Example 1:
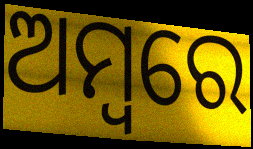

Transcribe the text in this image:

ଅମ୍ବରେ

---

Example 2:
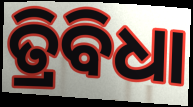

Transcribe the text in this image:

ତ୍ରିବିଧା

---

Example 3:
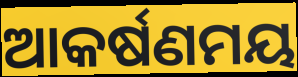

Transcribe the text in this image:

ଆକର୍ଷଣମୟ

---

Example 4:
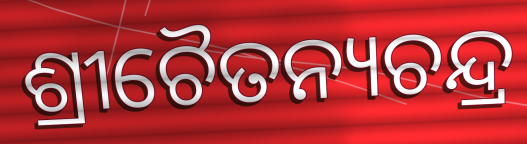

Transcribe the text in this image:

ଶ୍ରୀଚୈତନ୍ୟଚନ୍ଦ୍ର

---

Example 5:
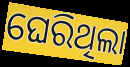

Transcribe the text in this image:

ଘେରିଥିଲା